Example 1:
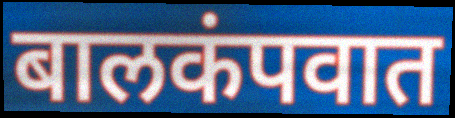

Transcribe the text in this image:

बालकंपवात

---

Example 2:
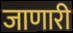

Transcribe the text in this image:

जाणारी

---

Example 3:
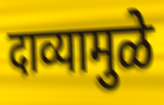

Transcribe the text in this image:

दाव्यामुळे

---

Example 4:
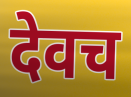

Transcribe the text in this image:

देवच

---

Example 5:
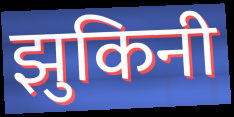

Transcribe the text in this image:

झुकिनी